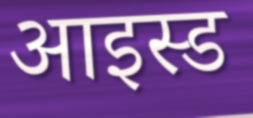
आइस्ड